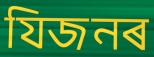
যিজনৰ